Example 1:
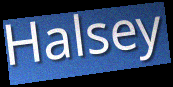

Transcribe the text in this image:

Halsey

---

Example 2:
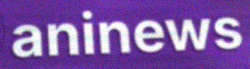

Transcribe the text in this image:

aninews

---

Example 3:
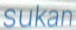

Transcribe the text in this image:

sukan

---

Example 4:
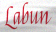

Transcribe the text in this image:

Labun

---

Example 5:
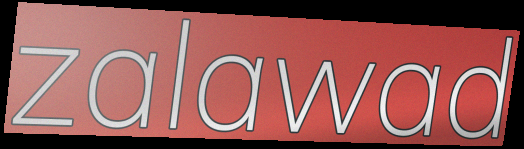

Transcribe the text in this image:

zalawad